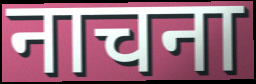
नाचना